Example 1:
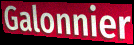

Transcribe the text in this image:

Galonnier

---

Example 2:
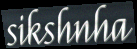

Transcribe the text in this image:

sikshnha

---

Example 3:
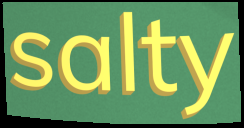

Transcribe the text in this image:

salty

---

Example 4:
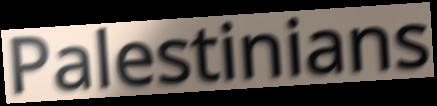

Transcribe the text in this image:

Palestinians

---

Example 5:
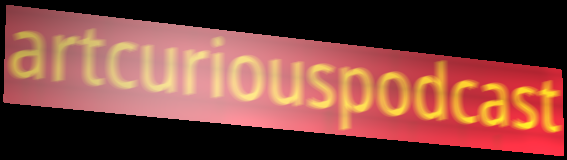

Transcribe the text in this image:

artcuriouspodcast